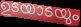
ഉടയാടയും